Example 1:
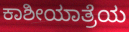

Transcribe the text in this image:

ಕಾಶೀಯಾತ್ರೆಯ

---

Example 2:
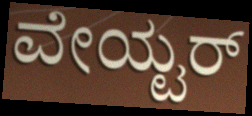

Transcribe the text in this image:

ವೇಯ್ಟರ್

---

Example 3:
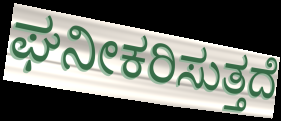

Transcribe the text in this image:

ಘನೀಕರಿಸುತ್ತದೆ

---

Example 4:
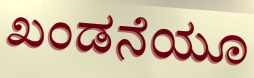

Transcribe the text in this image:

ಖಂಡನೆಯೂ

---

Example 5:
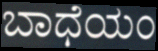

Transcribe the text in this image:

ಬಾಧೆಯಂ